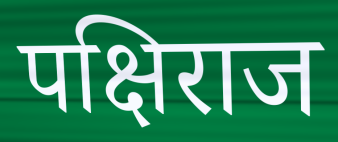
पक्षिराज